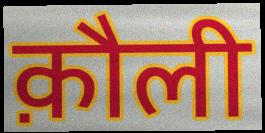
क़ौली